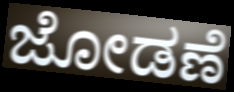
ಜೋಡಣೆ